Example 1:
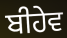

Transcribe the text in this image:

ਬੀਹੇਵ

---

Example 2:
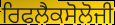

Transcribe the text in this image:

ਰਿਫਲੈਕਸੋਲੋਜੀ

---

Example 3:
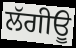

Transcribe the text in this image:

ਲੱਗੀਊ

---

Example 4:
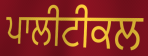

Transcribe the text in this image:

ਪਾਲੀਟੀਕਲ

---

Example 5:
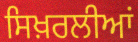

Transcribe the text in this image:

ਸਿਖ਼ਰਲੀਆਂ